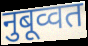
नुबूव्वत